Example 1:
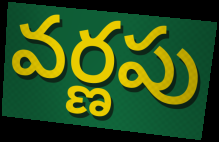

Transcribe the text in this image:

వర్ణపు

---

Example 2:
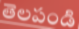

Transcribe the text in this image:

తెలపండి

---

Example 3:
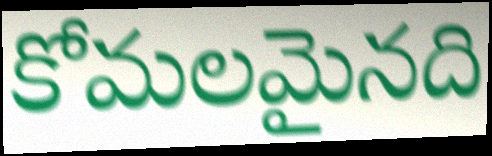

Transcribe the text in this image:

కోమలమైనది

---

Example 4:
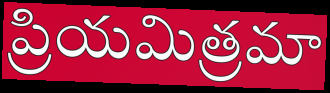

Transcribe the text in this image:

ప్రియమిత్రమా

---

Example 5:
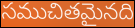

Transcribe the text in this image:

సముచితమైనది